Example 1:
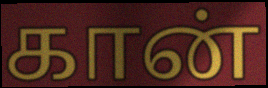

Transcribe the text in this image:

கான்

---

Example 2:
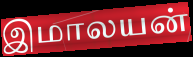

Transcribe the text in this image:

இமாலயன்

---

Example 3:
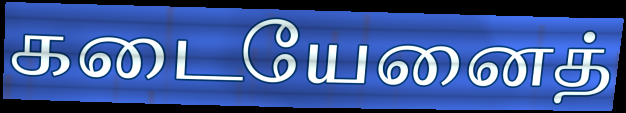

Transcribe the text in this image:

கடையேனைத்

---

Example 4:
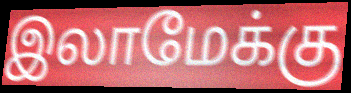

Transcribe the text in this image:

இலாமேக்கு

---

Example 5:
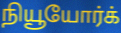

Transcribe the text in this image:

நியூயோர்க்